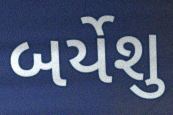
બર્યેશુ